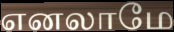
எனலாமே